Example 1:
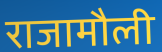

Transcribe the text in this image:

राजामौली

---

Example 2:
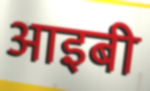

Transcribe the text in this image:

आइबी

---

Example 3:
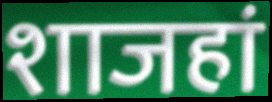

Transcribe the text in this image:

शाजहां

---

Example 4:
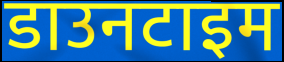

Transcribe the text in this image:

डाउनटाइम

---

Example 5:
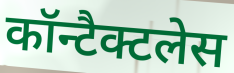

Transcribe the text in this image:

कॉन्टैक्टलेस